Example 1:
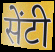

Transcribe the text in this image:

सेंटी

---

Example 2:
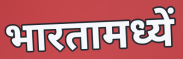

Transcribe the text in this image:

भारतामध्यें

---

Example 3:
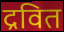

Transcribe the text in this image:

द्रवित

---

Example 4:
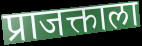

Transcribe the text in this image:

प्राजक्ताला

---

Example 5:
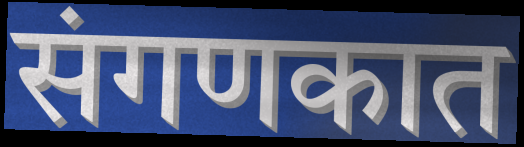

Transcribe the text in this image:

संगणकात